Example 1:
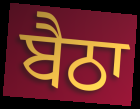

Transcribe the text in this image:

ਬੈਠਾ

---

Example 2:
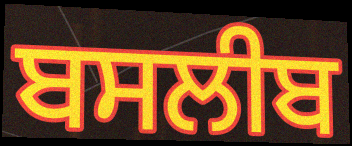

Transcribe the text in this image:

ਬਸਲੀਬ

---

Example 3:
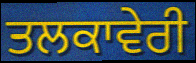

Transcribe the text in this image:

ਤਲਕਾਵੇਰੀ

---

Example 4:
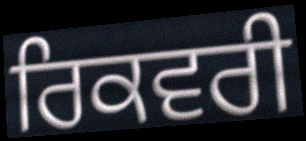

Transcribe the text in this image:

ਰਿਕਵਰੀ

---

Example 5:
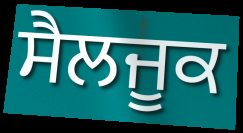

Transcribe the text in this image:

ਸੈਲਜੂਕ